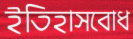
ইতিহাসবোধ